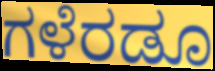
ಗಳೆರಡೂ